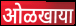
ओळखाया